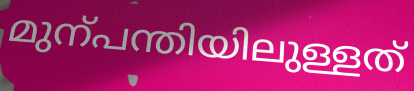
മുന്പന്തിയിലുള്ളത്